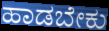
ಹಾಡಬೇಕು